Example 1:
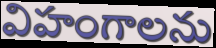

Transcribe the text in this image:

విహంగాలను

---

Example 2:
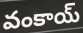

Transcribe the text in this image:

వంకాయ్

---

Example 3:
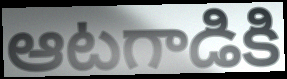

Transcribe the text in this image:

ఆటగాడికి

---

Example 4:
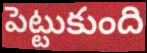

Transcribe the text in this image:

పెట్టుకుంది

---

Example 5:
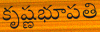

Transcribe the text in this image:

కృష్ణభూపతి